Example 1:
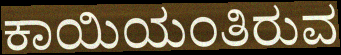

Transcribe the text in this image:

ಕಾಯಿಯಂತಿರುವ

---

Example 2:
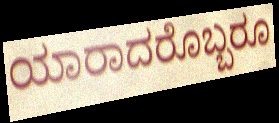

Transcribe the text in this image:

ಯಾರಾದರೊಬ್ಬರೂ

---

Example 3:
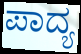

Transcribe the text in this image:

ಪಾದ್ಯ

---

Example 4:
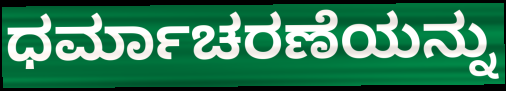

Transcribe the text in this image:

ಧರ್ಮಾಚರಣೆಯನ್ನು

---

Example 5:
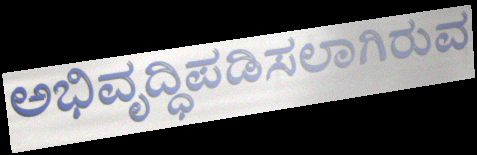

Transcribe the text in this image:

ಅಭಿವೃದ್ಧಿಪಡಿಸಲಾಗಿರುವ